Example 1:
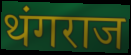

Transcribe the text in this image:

थंगराज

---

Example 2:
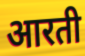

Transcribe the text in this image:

आरती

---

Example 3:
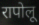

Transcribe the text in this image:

रापोलू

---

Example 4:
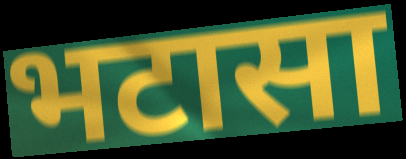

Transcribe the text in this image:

भटासा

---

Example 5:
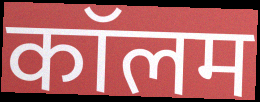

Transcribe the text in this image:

कॉलम